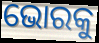
ଭୋରକୁ